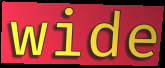
wide